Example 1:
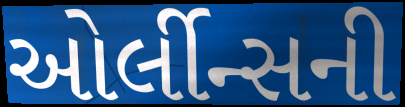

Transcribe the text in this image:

ઓર્લીન્સની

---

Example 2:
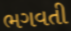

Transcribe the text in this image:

ભગવતી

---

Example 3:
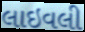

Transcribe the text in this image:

લાઇવલી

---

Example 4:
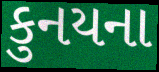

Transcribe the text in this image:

કુનયના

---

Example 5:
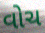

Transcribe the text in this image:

વોચ